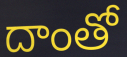
దాంతో